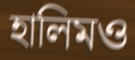
হালিমও